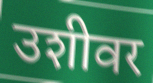
उशीवर